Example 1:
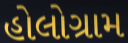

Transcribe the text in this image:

હોલોગ્રામ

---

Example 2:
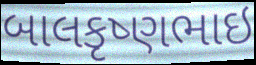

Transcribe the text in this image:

બાલકૃષ્ણભાઇ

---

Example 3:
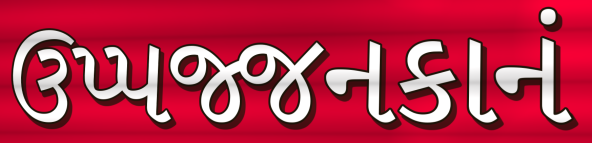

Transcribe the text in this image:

ઉપ્પજ્જનકાનં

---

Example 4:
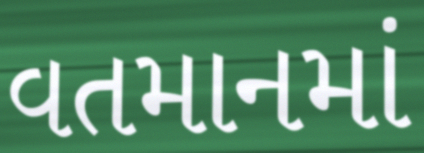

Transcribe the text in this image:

વતમાનમાં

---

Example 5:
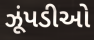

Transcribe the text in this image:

ઝૂંપડીઓ